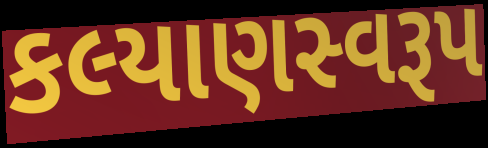
કલ્યાણસ્વરૂપ